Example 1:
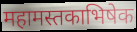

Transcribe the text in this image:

महामस्तकाभिषेक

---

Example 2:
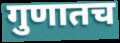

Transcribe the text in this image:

गुणातच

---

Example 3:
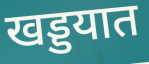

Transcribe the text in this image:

खड्डयात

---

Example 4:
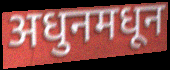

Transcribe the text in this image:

अधुनमधून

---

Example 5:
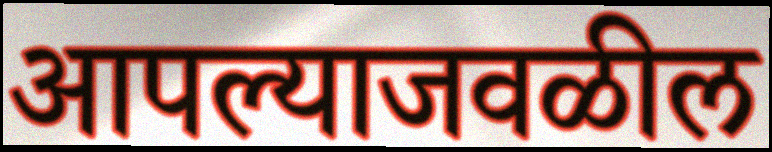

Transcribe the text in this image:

आपल्याजवळील